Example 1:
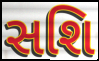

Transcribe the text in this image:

સશિ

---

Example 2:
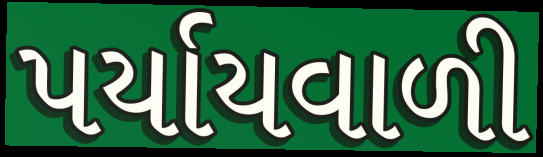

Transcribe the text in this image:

પર્યાયવાળી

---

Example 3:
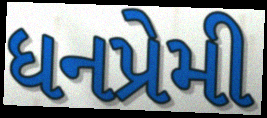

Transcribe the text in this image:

ધનપ્રેમી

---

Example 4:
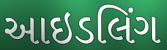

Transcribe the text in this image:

આઇડલિંગ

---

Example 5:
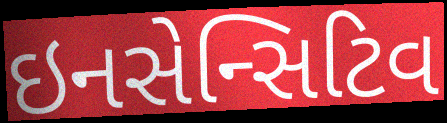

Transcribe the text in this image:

ઇનસેન્સિટિવ